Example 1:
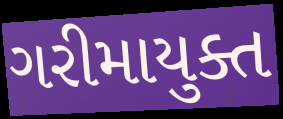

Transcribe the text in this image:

ગરીમાયુક્ત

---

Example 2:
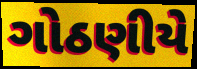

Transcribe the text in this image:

ગોઠણીયે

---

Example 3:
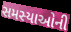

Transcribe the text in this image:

સમસ્યાઓની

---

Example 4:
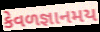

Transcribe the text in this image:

કેવળજ્ઞાનમય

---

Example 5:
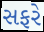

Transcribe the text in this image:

સફરે